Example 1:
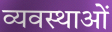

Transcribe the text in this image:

व्यवस्थाओें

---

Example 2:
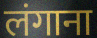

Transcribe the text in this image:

लंगाना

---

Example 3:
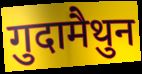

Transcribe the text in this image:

गुदामैथुन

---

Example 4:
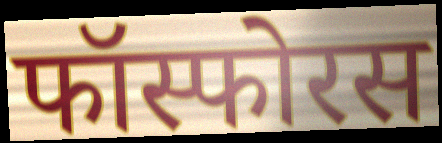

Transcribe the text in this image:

फॉस्फोरस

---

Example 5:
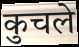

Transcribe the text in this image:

कुचले